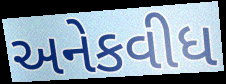
અનેકવીધ